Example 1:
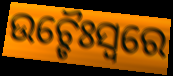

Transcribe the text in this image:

ଉଚ୍ଚୈଃସ୍ୱରେ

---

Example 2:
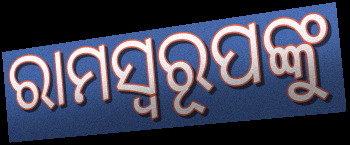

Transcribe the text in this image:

ରାମସ୍ୱରୂପଙ୍କୁ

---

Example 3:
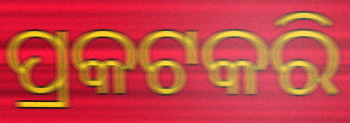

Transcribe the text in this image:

ପ୍ରକଟକରି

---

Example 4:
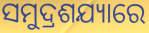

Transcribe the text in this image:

ସମୁଦ୍ରଶଯ୍ୟାରେ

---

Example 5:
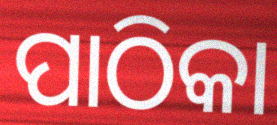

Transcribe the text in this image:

ପାଠିକା